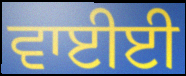
ਵਾਈਈ